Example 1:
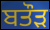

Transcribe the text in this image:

ਬਤੌੜ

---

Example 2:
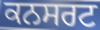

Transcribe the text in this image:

ਕਨਸਰਟ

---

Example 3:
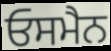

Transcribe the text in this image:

ਓਸਮੈਨ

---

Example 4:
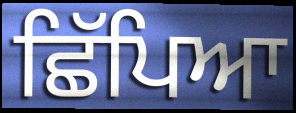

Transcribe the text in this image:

ਛਿੱਪਿਆ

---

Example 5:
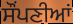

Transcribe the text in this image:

ਸੌਂਪਣੀਆਂ